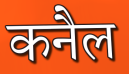
कनैल